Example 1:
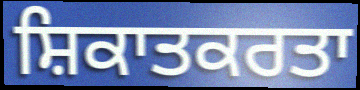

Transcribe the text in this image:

ਸ਼ਿਕਾਤਕਰਤਾ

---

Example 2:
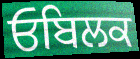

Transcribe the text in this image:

ਓਬਿਲਕ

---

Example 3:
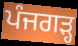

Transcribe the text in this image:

ਪੰਜਗੜ੍ਹ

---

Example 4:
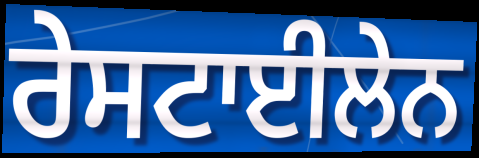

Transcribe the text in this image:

ਰੇਸਟਾਈਲੇਨ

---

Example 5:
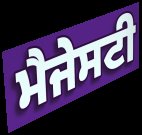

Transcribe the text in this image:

ਮੈਜੇਸਟੀ